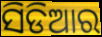
ସିଡିଆର